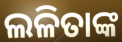
ଲଳିତାଙ୍କ